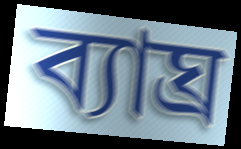
ব্যাঘ্র